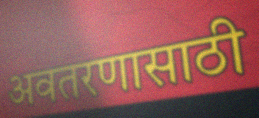
अवतरणासाठी